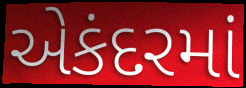
એકંદરમાં